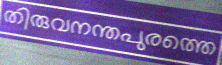
തിരുവനന്തപുരത്തെ